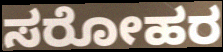
ಸರೋಹರ